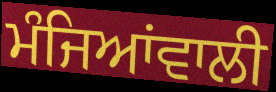
ਮੰਜਿਆਂਵਾਲੀ